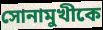
সোনামুখীকে